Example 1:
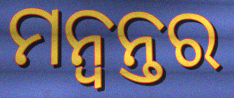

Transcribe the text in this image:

ମନ୍ବନ୍ତର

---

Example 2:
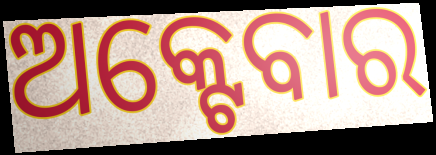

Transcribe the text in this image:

ଅକ୍ଟେବାର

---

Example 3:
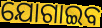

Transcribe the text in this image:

ଯୋଗାଇବ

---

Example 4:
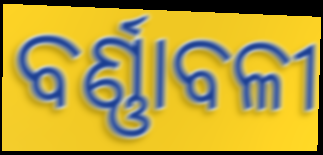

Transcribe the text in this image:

ବର୍ଣ୍ଣାବଳୀ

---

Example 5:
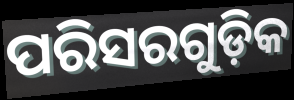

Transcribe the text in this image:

ପରିସରଗୁଡ଼ିକ